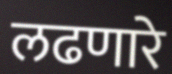
लढणारे